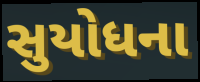
સુયોધના